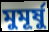
মুমূৰ্ষু